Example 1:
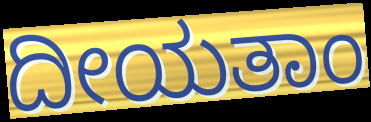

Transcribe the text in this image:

ದೀಯತಾಂ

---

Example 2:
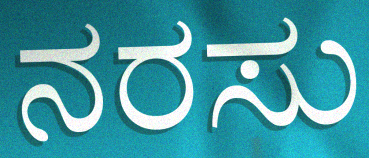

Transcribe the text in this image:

ನರಸು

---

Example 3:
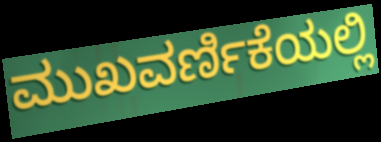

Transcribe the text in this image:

ಮುಖವರ್ಣಿಕೆಯಲ್ಲಿ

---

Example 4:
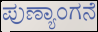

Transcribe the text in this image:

ಪುಣ್ಯಾಂಗನೆ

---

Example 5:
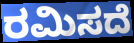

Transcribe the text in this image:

ರಮಿಸದೆ